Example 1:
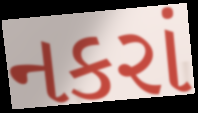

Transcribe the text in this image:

નકરાં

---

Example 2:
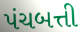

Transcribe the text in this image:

પંચબત્તી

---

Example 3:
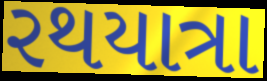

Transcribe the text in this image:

રથયાત્રા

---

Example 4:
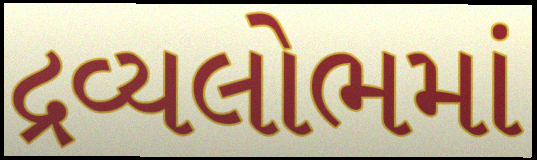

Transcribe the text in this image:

દ્રવ્યલોભમાં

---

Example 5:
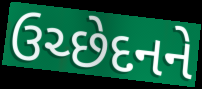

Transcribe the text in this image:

ઉચ્છેદનને